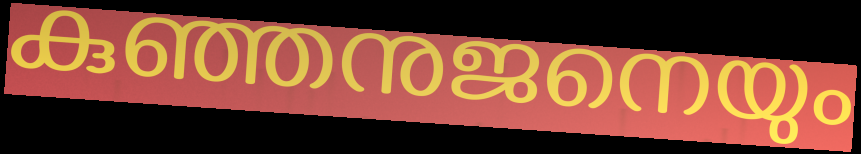
കുഞ്ഞനുജനെയും